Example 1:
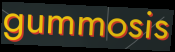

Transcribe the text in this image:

gummosis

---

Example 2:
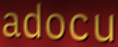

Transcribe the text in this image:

adocu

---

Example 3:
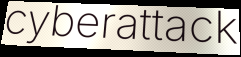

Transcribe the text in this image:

cyberattack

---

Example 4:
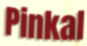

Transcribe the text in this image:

Pinkal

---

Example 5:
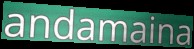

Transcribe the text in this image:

andamaina